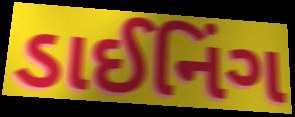
ડાઈનિંગ